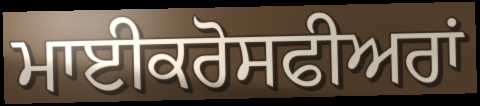
ਮਾਈਕਰੋਸਫੀਅਰਾਂ